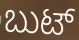
ಬುಟ್